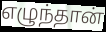
எழுந்தான்